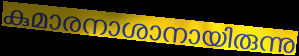
കുമാരനാശാനായിരുന്നു